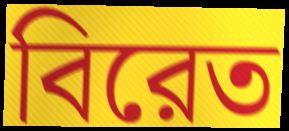
বিরেত